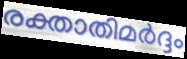
രക്താതിമർദ്ദം